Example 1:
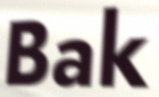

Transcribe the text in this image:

Bak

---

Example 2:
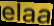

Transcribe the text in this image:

elaa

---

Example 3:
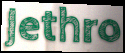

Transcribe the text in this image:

Jethro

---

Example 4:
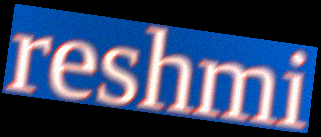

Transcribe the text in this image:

reshmi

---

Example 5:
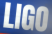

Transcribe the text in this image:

LIGO